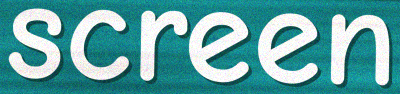
screen